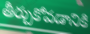
తీర్చుకోవడానికి